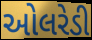
ઓલરેડી